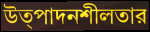
উত্পাদনশীলতার